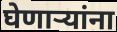
घेणाऱ्यांना